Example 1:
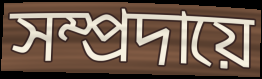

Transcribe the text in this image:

সম্প্ৰদায়ে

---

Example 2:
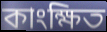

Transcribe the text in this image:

কাংক্ষিত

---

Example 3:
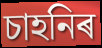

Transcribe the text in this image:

চাহনিৰ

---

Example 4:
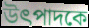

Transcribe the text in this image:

উৎপাদকে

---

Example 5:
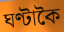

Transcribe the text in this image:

ঘণ্টাকৈ